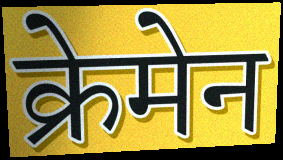
क्रेमेन